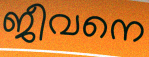
ജീവനെ